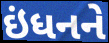
ઇંધનને